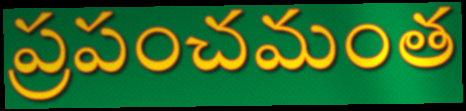
ప్రపంచమంత